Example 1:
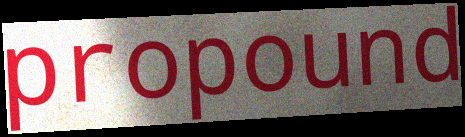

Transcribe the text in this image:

propound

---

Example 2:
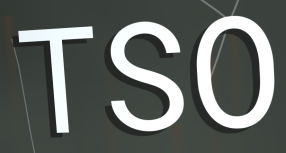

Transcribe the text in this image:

TSO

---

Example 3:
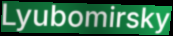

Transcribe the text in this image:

Lyubomirsky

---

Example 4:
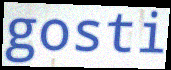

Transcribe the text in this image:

gosti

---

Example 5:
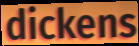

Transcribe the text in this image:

dickens